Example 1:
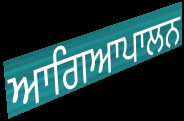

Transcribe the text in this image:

ਆਗਿਆਪਾਲਨ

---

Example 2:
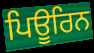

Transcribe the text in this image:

ਪਿਊਰਿਨ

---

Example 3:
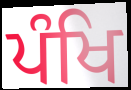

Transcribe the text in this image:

ਪੰਖਿ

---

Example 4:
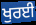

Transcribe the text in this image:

ਖੁਰਈ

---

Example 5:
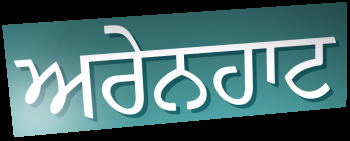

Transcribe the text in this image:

ਅਰੇਨਹਾਟ